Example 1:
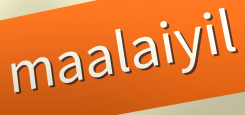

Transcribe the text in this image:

maalaiyil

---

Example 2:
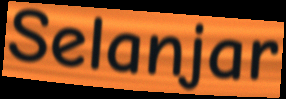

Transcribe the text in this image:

Selanjar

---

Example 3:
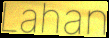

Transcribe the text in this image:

Lahan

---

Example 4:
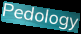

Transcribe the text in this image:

Pedology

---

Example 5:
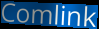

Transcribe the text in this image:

Comlink